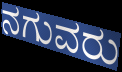
ನಗುವರು